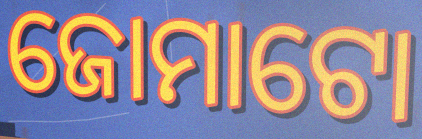
ଜୋମାଟୋ